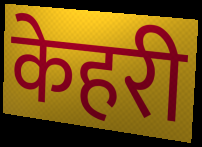
केहरी